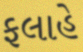
ફલાહે